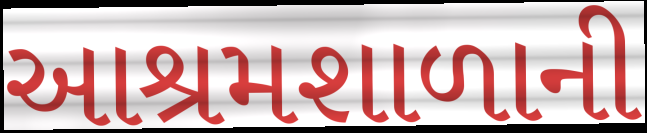
આશ્રમશાળાની